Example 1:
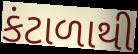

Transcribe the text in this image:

કંટાળાથી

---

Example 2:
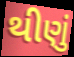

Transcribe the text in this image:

થીણું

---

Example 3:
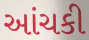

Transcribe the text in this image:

આંચકી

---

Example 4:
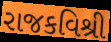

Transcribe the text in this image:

રાજકવિશ્રી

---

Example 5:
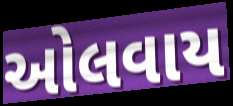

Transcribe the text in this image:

ઓલવાય